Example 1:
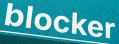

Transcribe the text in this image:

blocker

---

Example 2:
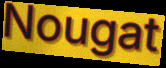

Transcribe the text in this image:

Nougat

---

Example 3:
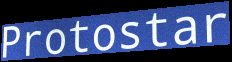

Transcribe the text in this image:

Protostar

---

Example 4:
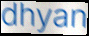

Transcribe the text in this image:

dhyan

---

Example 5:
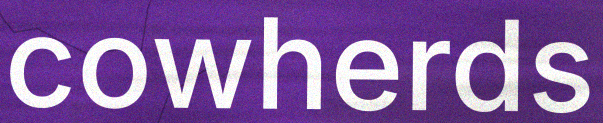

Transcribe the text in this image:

cowherds